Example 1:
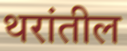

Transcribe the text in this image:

थरांतील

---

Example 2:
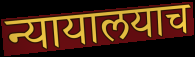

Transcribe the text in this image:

न्यायालयाच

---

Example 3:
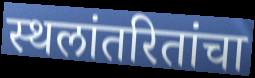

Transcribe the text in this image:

स्थलांतरितांचा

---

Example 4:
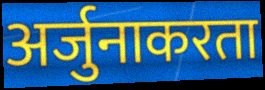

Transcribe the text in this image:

अर्जुनाकरता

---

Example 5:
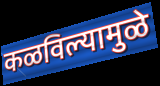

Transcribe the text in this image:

कळविल्यामुळे